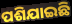
ପଶିଯାଇଛି